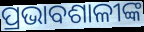
ପ୍ରଭାବଶାଳୀଙ୍କ